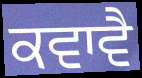
ਕਵਾਵੈ